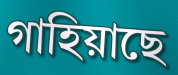
গাহিয়াছে